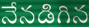
నేనడిగిన